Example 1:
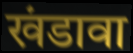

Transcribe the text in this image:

खंडावा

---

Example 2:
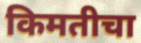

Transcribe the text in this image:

किमतीचा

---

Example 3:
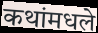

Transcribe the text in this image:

कथांमधले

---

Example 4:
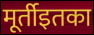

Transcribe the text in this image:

मूर्तीइतका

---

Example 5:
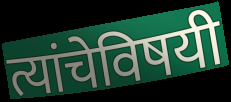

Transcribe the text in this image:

त्यांचेविषयी